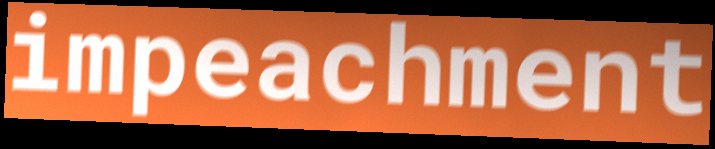
impeachment